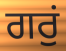
ਗਰੁਂ